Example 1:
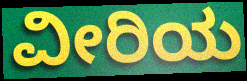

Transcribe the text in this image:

ವೀರಿಯ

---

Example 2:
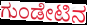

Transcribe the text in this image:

ಗುಂಡೇಟಿನ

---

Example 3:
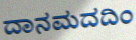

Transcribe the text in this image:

ದಾನಮದದಿಂ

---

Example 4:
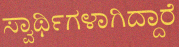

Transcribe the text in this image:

ಸ್ವಾರ್ಥಿಗಳಾಗಿದ್ದಾರೆ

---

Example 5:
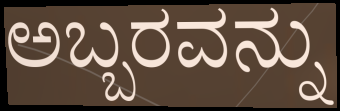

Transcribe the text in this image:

ಅಬ್ಬರವನ್ನು